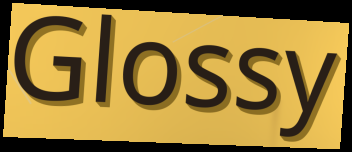
Glossy